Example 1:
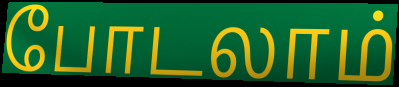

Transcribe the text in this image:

போடலாம்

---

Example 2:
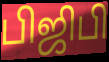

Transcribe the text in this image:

பிஜிபி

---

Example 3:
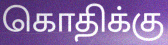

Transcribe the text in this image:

கொதிக்கு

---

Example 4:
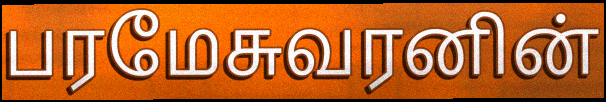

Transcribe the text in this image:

பரமேசுவரனின்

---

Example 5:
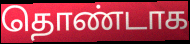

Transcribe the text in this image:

தொண்டாக